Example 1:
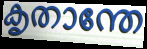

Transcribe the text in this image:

കൃതാന്തേ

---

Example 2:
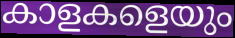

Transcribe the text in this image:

കാളകളെയും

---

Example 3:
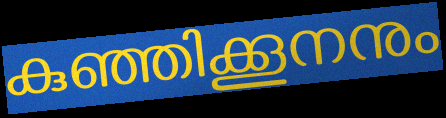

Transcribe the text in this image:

കുഞ്ഞിക്കൂനനും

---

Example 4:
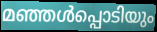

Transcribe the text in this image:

മഞ്ഞൾപ്പൊടിയും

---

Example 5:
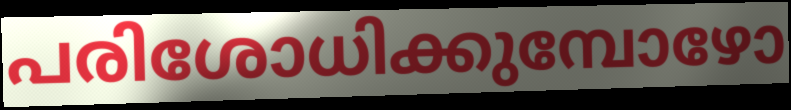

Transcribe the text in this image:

പരിശോധിക്കുമ്പോഴോ